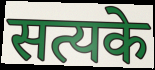
सत्यके